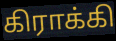
கிராக்கி